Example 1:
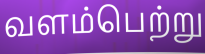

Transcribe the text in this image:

வளம்பெற்று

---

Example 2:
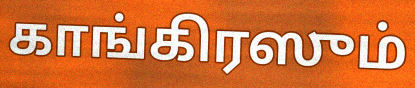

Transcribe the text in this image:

காங்கிரஸும்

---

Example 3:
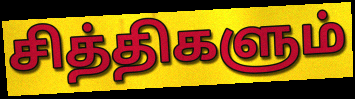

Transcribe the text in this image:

சித்திகளும்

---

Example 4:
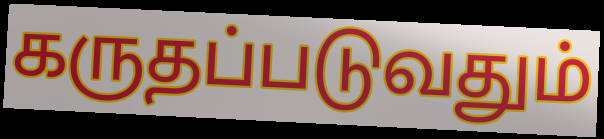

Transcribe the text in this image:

கருதப்படுவதும்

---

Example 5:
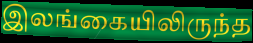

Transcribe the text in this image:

இலங்கையிலிருந்த